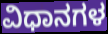
ವಿಧಾನಗಳ